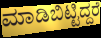
ಮಾಡಿಬಿಟ್ಟಿದ್ದರೆ